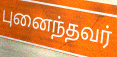
புனைந்தவர்